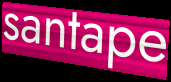
santape